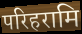
परिहरामि